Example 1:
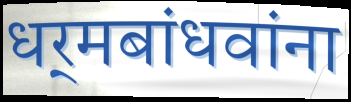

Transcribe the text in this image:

धर्मबांधवांना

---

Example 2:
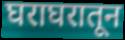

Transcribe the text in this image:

घराघरातून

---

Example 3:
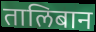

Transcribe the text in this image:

तालिबान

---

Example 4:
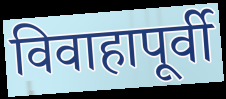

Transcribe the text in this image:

विवाहापूर्वी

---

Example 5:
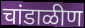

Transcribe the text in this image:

चांडाळीण